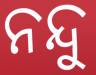
ନନ୍ଦୁ